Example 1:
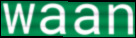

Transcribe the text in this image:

waan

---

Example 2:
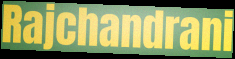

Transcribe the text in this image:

Rajchandrani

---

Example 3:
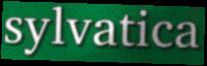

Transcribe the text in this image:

sylvatica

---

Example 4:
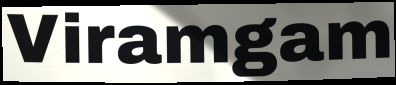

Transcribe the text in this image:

Viramgam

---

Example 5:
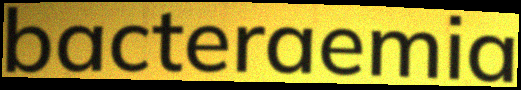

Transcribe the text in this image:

bacteraemia